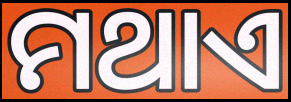
ମଥାଏ